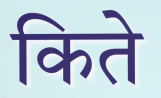
किते